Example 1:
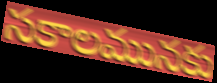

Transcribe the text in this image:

సకాలమునకు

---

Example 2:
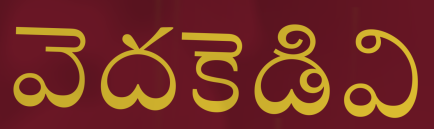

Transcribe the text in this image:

వెదకెడివి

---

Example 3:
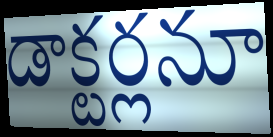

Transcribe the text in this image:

డాక్టర్లనూ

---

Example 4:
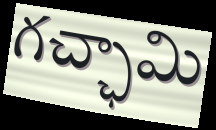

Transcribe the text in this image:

గచ్ఛామి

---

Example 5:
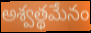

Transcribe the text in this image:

అశ్వత్థమేనం